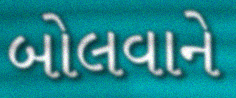
બોલવાને